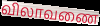
விலாவணை